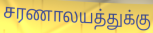
சரணாலயத்துக்கு